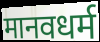
मानवधर्म